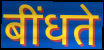
बींधते